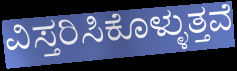
ವಿಸ್ತರಿಸಿಕೊಳ್ಳುತ್ತವೆ